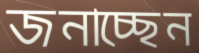
জনাচ্ছেন